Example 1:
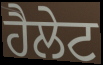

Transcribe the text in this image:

ਹੈਲੇਟ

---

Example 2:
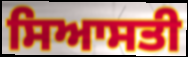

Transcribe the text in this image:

ਸਿਆਸਤੀ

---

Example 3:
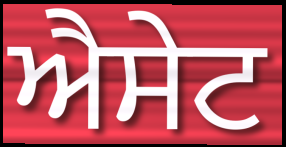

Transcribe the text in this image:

ਐਸੇਟ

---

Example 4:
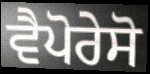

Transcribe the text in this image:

ਵੈਪੋਰੇਸੋ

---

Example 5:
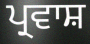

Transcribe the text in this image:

ਪ੍ਰਵਾਸ਼